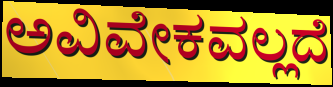
ಅವಿವೇಕವಲ್ಲದೆ